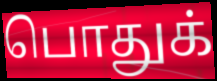
பொதுக்